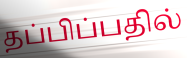
தப்பிப்பதில்